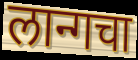
लान्गचा